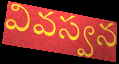
వివస్వన